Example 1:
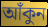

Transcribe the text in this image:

আঁকুন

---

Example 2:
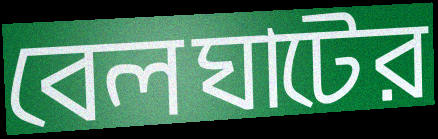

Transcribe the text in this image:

বেলঘাটের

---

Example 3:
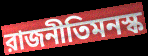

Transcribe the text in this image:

রাজনীতিমনস্ক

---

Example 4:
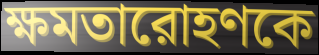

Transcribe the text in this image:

ক্ষমতারোহণকে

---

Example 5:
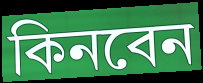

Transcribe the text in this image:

কিনবেন